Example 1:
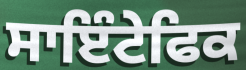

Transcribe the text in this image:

ਸਾਇੰਟੇਫਿਕ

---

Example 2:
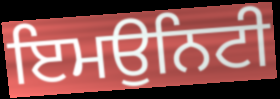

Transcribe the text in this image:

ਇਮਉਨਿਟੀ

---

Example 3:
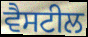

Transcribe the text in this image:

ਵੈਸਟੀਲ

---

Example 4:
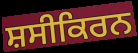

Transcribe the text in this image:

ਸ਼ਸੀਕਿਰਨ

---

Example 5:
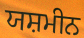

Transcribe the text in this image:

ਯਸ਼ਮੀਨ